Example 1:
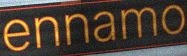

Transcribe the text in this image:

ennamo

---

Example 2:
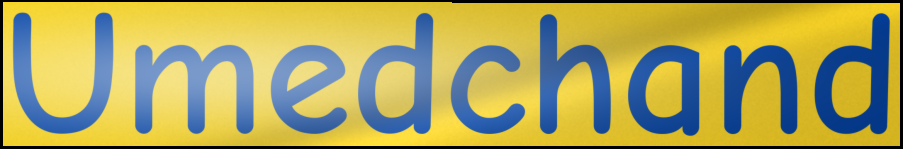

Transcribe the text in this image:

Umedchand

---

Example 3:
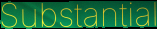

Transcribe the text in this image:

Substantial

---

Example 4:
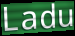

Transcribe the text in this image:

Ladu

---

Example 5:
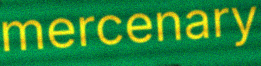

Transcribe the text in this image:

mercenary